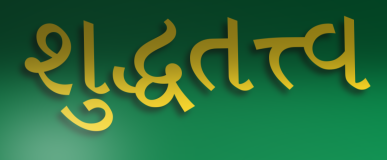
શુદ્ધતત્ત્વ